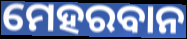
ମେହରବାନ